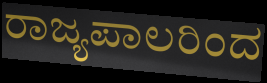
ರಾಜ್ಯಪಾಲರಿಂದ